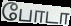
போடா